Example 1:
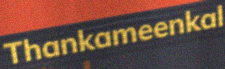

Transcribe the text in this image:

Thankameenkal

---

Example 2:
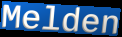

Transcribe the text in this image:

Melden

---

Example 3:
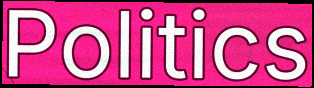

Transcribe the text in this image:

Politics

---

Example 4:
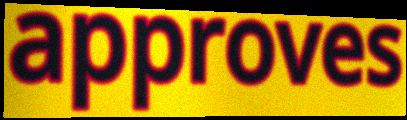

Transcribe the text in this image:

approves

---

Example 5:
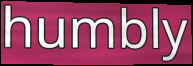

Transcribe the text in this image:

humbly